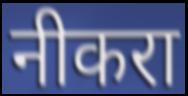
नीकरा